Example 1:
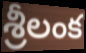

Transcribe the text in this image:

శ్రీలంక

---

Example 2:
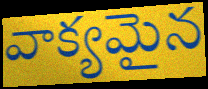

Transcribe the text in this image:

వాక్యమైన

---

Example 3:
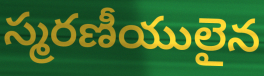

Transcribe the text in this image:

స్మరణీయులైన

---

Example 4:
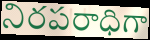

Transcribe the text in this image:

నిరపరాధిగా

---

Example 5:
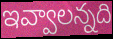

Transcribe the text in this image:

ఇవ్వాలన్నది